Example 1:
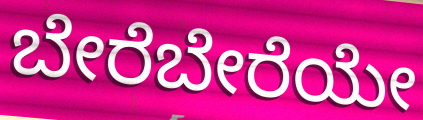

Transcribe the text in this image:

ಬೇರೆಬೇರೆಯೇ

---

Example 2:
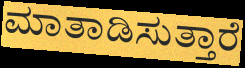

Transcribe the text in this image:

ಮಾತಾಡಿಸುತ್ತಾರೆ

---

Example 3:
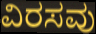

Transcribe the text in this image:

ವಿರಸವು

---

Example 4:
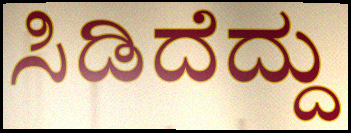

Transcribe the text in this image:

ಸಿಡಿದೆದ್ದು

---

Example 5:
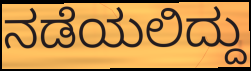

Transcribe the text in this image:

ನಡೆಯಲಿದ್ದು